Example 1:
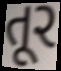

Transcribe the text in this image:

તૂર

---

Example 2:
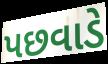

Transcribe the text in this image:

પછવાડે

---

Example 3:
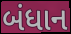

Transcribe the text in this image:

બંધાન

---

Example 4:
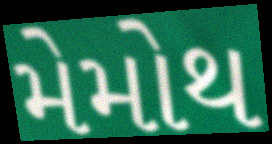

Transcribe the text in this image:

મેમોથ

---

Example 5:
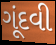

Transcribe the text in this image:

ગૂંદવી